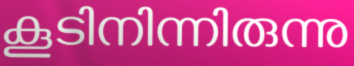
കൂടിനിന്നിരുന്നു